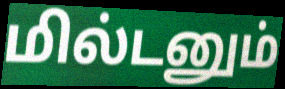
மில்டனும்